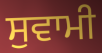
ਸੁਵਾਮੀ